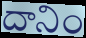
దానిం